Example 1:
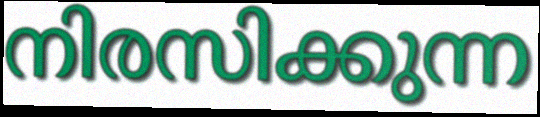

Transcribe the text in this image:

നിരസിക്കുന്ന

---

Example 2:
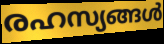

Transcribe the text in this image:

രഹസ്യങ്ങൾ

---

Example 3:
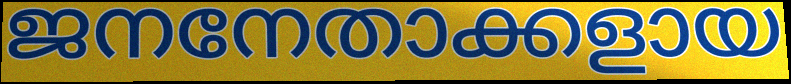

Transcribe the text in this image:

ജനനേതാക്കളായ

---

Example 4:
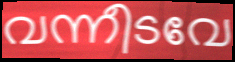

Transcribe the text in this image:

വന്നീടവേ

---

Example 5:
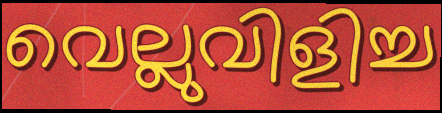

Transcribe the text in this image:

വെല്ലുവിളിച്ച